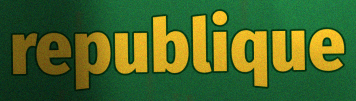
republique